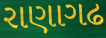
રાણાગઢ